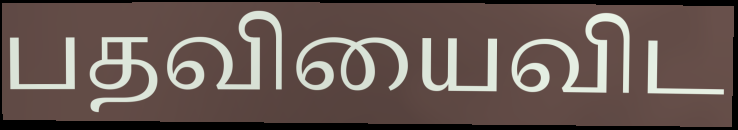
பதவியைவிட